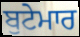
ਬੁਟੇਮਾਰ